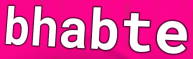
bhabte